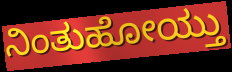
ನಿಂತುಹೋಯ್ತು